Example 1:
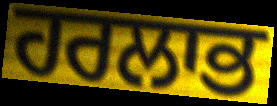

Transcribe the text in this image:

ਹਰਲਾਭ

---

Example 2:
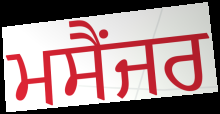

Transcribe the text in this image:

ਮਸੈਂਜਰ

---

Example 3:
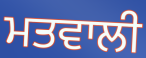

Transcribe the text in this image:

ਮਤਵਾਲੀ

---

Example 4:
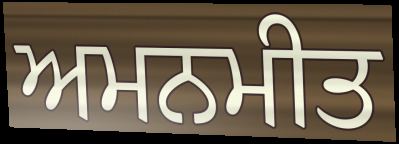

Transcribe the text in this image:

ਅਮਨਮੀਤ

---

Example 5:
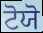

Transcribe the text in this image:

ਟੋਯੋ